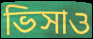
ভিসাও